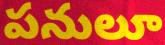
పనులూ